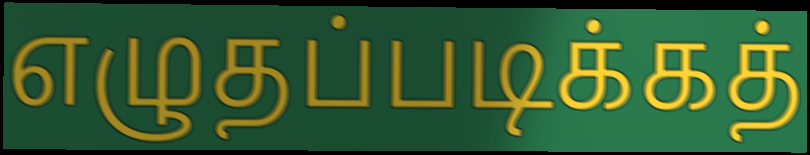
எழுதப்படிக்கத்